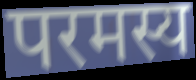
परमस्य